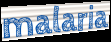
malaria